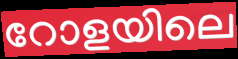
റോളയിലെ